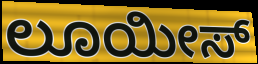
ಲೂಯೀಸ್